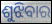
ଶୁଝିବାର